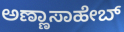
ಅಣ್ಣಾಸಾಹೇಬ್